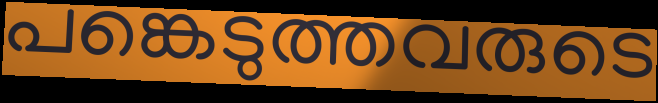
പങ്കെടുത്തവരുടെ